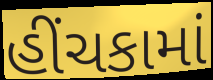
હીંચકામાં